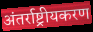
अंतर्राष्ट्रीयकरण